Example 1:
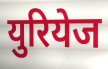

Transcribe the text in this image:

युरियेज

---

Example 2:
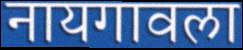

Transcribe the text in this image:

नायगावला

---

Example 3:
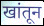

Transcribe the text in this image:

खांतून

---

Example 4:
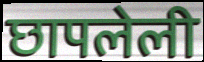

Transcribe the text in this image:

छापलेली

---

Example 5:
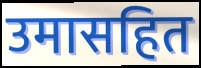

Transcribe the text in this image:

उमासहित